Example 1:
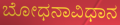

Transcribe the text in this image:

ಬೋಧನಾವಿಧಾನ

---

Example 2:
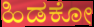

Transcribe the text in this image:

ಹಿಡಕೋ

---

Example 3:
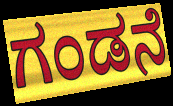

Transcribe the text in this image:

ಗಂಡನೆ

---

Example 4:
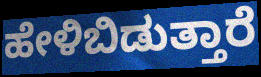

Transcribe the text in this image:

ಹೇಳಿಬಿಡುತ್ತಾರೆ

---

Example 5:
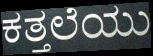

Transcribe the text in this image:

ಕತ್ತಲೆಯು